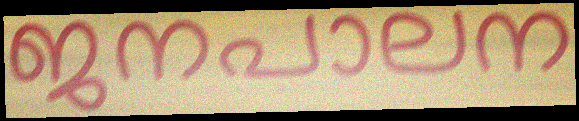
ജനപാലന